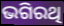
ଭଗିରଥି